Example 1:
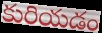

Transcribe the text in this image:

కురియడం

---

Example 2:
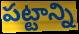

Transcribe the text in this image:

పట్టాన్ని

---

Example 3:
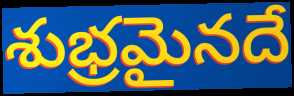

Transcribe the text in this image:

శుభ్రమైనదే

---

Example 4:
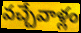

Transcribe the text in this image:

వచ్చేవాళ్లం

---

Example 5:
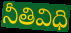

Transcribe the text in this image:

నీతివిధి